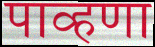
पाव्हणा